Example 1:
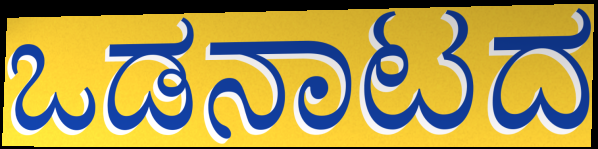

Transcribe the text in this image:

ಒಡನಾಟದ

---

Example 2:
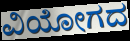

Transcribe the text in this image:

ವಿಯೋಗದ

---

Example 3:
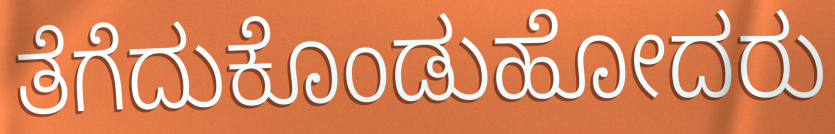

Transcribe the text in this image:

ತೆಗೆದುಕೊಂಡುಹೋದರು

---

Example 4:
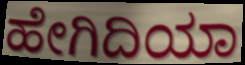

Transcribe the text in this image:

ಹೇಗಿದಿಯಾ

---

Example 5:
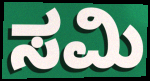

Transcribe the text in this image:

ಸಮಿ